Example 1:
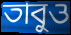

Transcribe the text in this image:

তাবুও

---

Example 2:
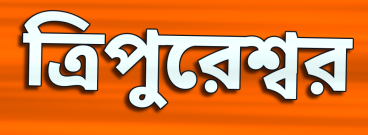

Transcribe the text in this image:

ত্রিপুরেশ্বর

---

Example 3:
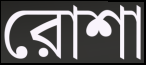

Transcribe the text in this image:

রোশা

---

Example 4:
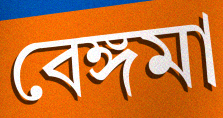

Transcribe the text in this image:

বেঙ্গমা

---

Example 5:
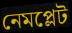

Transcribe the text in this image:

নেমপ্লেট